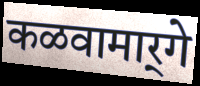
कळवामार्गे